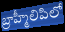
బ్రాహ్మీలిపిలో